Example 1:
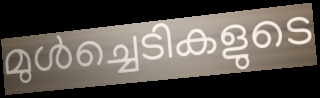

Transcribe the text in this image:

മുൾച്ചെടികളുടെ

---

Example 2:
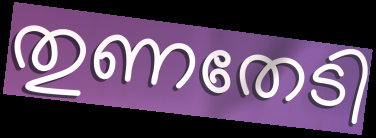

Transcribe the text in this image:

തുണതേടി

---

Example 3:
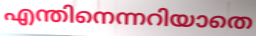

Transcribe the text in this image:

എന്തിനെന്നറിയാതെ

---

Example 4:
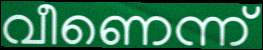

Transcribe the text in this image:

വീണെന്ന്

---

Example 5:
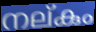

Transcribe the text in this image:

നല്‌കും